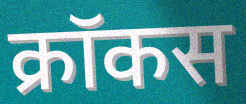
क्रॉकस